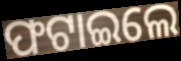
ଫଟାଇଲେ